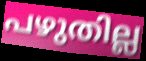
പഴുതില്ല